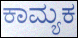
ಕಾಮ್ಯಕ